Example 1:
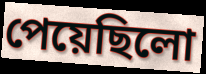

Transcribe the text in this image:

পেয়েছিলো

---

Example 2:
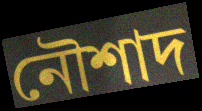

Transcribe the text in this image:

নৌশাদ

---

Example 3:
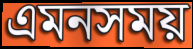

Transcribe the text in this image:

এমনসময়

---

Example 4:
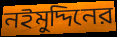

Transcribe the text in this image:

নইমুদ্দিনের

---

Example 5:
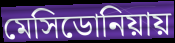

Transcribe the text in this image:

মেসিডোনিয়ায়